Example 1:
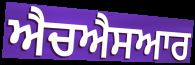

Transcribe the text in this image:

ਐਚਐਸਆਰ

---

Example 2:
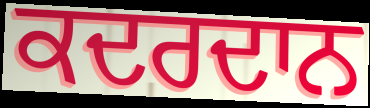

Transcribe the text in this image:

ਕਦਰਦਾਨ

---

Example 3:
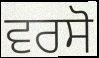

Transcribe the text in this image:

ਵਰਸੋ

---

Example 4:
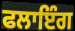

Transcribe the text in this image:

ਫਲਾਇੰਗ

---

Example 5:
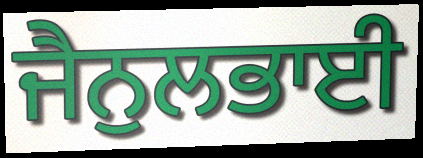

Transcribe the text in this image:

ਜੈਨੁਲਭਾਈ